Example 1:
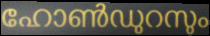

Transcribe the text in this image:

ഹോൺഡുറസും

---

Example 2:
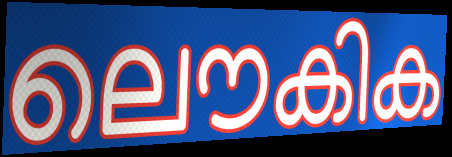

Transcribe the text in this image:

ലൌകിക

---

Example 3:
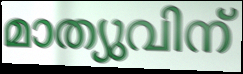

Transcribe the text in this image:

മാത്യുവിന്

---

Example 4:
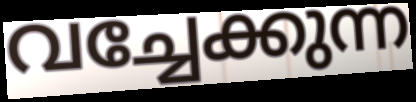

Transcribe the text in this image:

വച്ചേക്കുന്ന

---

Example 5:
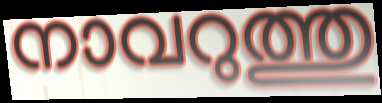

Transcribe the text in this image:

നാവറുത്തു